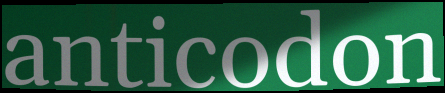
anticodon